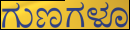
ಗುಣಗಳೂ